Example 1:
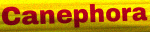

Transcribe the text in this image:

Canephora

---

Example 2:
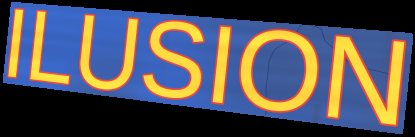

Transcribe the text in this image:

ILUSION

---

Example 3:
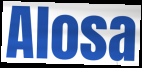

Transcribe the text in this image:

Alosa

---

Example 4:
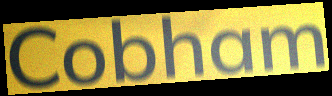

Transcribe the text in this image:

Cobham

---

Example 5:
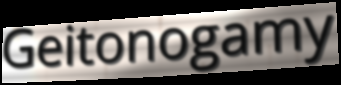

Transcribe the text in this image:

Geitonogamy